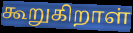
கூறுகிறாள்